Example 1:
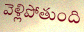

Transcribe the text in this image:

వెళ్లిపోతుంది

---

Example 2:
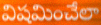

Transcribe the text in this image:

విషమించేలా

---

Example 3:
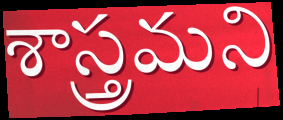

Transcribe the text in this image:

శాస్త్రమని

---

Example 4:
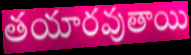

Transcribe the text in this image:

తయారవుతాయి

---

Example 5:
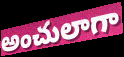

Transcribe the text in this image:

అంచులాగా